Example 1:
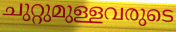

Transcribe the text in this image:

ചുറ്റുമുള്ളവരുടെ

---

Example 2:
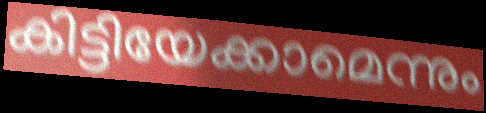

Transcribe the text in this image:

കിട്ടിയേക്കാമെന്നും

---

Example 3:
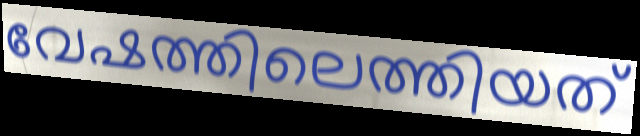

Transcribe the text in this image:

വേഷത്തിലെത്തിയത്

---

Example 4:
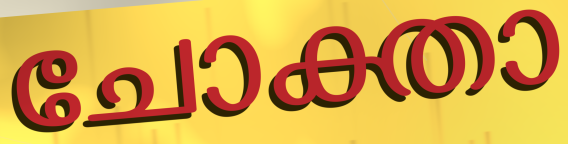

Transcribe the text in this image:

ചോക്താ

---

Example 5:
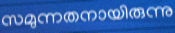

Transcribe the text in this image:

സമുന്നതനായിരുന്നു